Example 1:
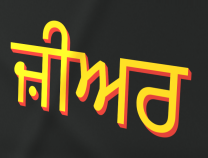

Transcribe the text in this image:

ਜ਼ੀਅਰ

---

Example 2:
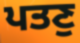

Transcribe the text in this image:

ਪਤਣੁ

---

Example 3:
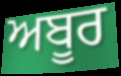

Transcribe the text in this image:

ਅਬੂਰ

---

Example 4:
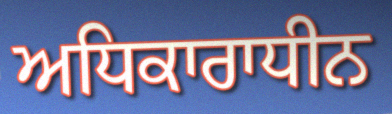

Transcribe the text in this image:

ਅਧਿਕਾਰਾਧੀਨ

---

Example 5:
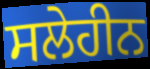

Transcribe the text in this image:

ਸਲੇਹੀਨ